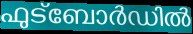
ഫുട്ബോർഡിൽ